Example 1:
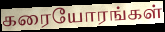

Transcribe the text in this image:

கரையோரங்கள்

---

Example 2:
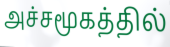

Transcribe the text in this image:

அச்சமூகத்தில்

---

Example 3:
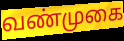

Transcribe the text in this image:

வண்முகை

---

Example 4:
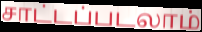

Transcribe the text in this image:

சாட்டப்படலாம்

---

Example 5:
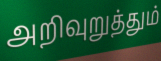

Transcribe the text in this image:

அறிவுறுத்தும்